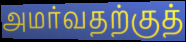
அமர்வதற்குத்